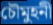
চৌমুহনী